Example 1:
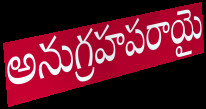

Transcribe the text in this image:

అనుగ్రహపరాయై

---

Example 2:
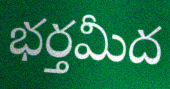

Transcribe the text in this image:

భర్తమీద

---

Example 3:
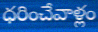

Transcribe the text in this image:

ధరించేవాళ్లం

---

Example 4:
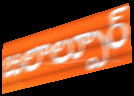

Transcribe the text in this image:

జలాల్పూర్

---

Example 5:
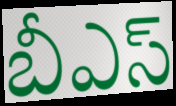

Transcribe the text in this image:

బీఎస్